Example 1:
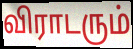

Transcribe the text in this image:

விராடரும்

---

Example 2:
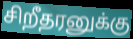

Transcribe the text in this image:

சிறீதரனுக்கு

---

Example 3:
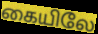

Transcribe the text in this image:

கையிலே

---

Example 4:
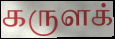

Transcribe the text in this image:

கருளக்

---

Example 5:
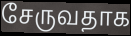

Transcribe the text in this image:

சேருவதாக